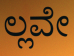
ಲ್ಲವೇ